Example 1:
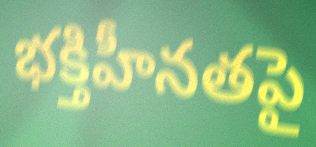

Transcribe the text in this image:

భక్తిహీనతపై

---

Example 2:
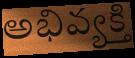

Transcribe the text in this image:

అభివ్యక్తి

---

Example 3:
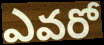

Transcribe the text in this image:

ఎవరో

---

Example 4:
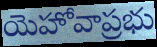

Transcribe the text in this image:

యెహోవాప్రభు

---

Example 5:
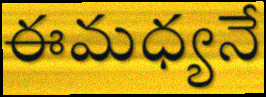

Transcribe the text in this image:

ఈమధ్యనే